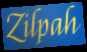
Zilpah